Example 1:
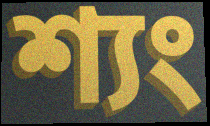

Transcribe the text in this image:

শ্যং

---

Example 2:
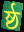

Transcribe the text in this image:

ষ্ঠ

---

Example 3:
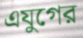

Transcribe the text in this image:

এযুগের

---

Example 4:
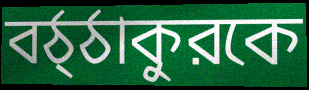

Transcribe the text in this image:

বঠ্ঠাকুরকে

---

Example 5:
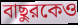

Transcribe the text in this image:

বাছুরকেও